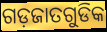
ଗଡ଼ଜାତଗୁଡିକ